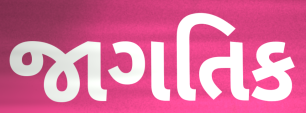
જાગતિક